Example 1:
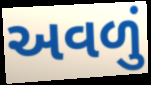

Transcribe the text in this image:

અવળું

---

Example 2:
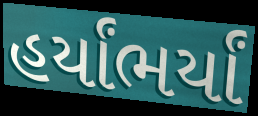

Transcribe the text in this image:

હર્યાંભર્યાં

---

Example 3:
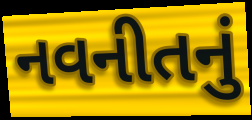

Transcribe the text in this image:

નવનીતનું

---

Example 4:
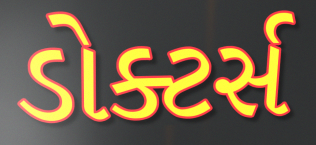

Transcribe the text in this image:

ડોક્ટર્સ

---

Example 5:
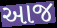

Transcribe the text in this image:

આજ